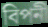
বিপনী